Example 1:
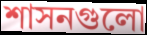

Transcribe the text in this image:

শাসনগুলো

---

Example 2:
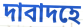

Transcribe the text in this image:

দাবাদহে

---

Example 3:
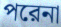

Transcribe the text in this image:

পরেনা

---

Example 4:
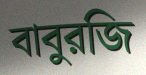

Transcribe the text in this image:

বাবুরজি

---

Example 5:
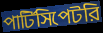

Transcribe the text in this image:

পার্টিসিপেটরি